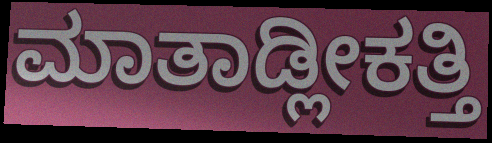
ಮಾತಾಡ್ಲೀಕತ್ತಿ